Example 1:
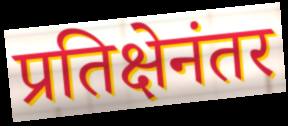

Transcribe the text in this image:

प्रतिक्षेनंतर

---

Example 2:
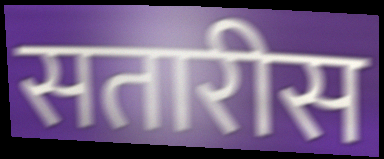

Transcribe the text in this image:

सतारीस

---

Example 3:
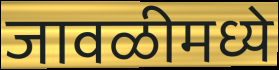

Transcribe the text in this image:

जावळीमध्ये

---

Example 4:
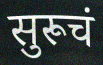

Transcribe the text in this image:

सुरूचं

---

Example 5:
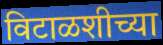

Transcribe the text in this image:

विटाळशीच्या